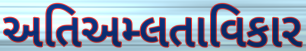
અતિઅમ્લતાવિકાર